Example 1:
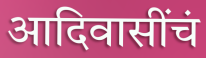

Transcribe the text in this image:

आदिवासींचं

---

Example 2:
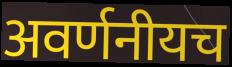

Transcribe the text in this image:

अवर्णनीयच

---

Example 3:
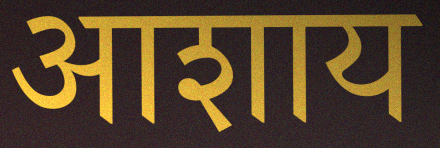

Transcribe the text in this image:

आशाय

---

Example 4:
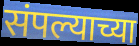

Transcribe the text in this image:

संपल्याच्या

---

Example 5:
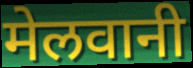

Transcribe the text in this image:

मेलवानी